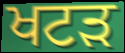
ਖਟੜ